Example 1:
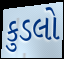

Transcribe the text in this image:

કુડલો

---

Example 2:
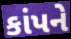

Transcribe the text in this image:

કાંપને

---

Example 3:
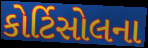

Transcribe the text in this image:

કોર્ટિસોલના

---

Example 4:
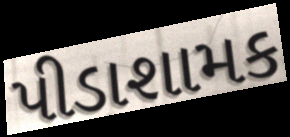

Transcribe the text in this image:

પીડાશામક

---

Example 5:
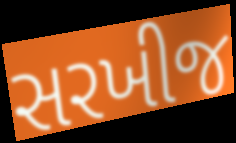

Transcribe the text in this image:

સરખીજ